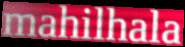
mahilhala